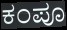
ಕಂಪೂ